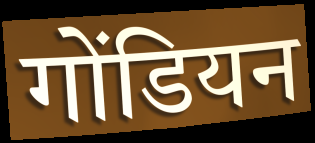
गोंडियन